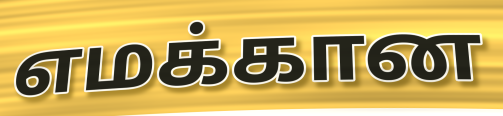
எமக்கான